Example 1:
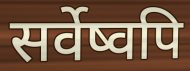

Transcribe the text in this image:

सर्वेष्वपि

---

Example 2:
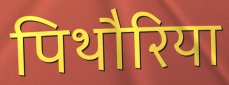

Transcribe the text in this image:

पिथौरिया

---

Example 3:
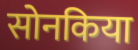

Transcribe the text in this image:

सोनकिया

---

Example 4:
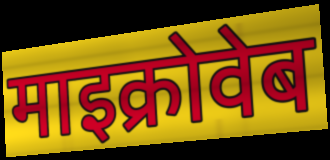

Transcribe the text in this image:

माइक्रोवेब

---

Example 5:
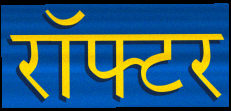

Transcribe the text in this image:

रॉफ्टर